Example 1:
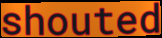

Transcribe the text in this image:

shouted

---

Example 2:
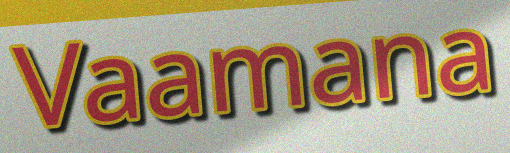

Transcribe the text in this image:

Vaamana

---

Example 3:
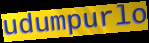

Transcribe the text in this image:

udumpurlo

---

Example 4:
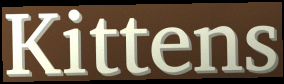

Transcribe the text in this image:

Kittens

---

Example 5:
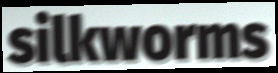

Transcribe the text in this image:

silkworms